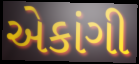
એકાંગી